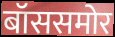
बॉससमोर